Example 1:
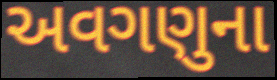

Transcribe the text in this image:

અવગણુના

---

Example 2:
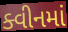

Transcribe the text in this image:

ક્વીનમાં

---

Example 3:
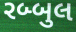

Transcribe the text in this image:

રબ્બુલ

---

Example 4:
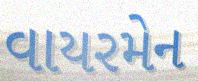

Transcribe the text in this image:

વાયરમેન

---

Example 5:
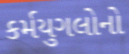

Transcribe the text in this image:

કર્મયુગલોનો